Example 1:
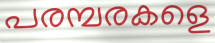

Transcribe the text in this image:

പരമ്പരകളെ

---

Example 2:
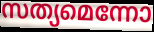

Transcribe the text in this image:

സത്യമെന്നോ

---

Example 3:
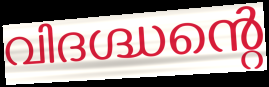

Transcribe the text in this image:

വിദഗ്ദ്ധന്റെ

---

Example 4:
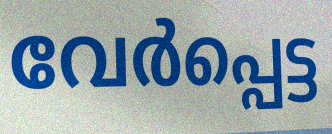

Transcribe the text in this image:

വേർപ്പെട്ട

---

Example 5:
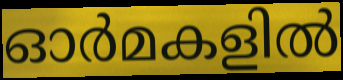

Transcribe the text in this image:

ഓർമകളിൽ